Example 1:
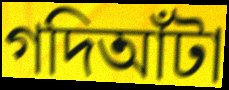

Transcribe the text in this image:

গদিআঁটা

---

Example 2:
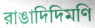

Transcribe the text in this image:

রাঙাদিদিমণি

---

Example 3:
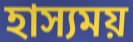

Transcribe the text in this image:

হাস্যময়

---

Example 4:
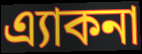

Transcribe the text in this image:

এ্যাকনা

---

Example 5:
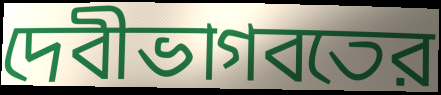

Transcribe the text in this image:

দেবীভাগবতের